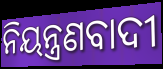
ନିୟନ୍ତ୍ରଣବାଦୀ